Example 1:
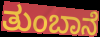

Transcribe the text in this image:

ತುಂಬಾನೆ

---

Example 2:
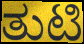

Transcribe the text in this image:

ತುಟಿ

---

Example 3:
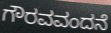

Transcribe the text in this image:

ಗೌರವವಂದನೆ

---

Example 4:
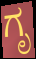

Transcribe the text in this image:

ಗೃ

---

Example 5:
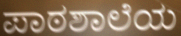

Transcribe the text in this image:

ಪಾಠಶಾಲೆಯ